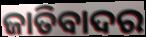
ଜାତିବାଦର